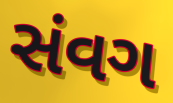
સંવગ